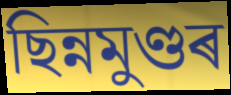
ছিন্নমুণ্ডৰ